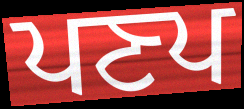
ਪਣਪ